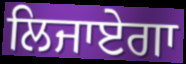
ਲਿਜਾਏਗਾ